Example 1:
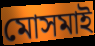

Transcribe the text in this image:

মোসমাই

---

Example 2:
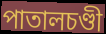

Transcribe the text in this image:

পাতালচণ্ডী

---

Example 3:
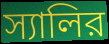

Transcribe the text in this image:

স্যালির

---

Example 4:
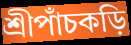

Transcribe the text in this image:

শ্রীপাঁচকড়ি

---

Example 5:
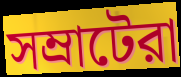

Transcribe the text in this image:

সম্রাটেরা